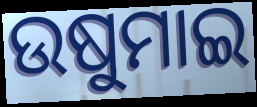
ଉଷୁମାଇ